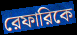
রেফারিকে